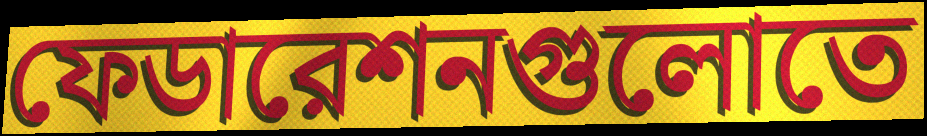
ফেডারেশনগুলোতে